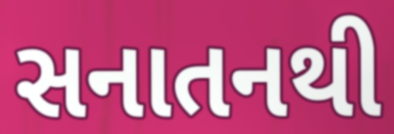
સનાતનથી